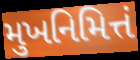
મુખનિમિત્તં